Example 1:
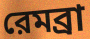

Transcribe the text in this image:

রেমব্রা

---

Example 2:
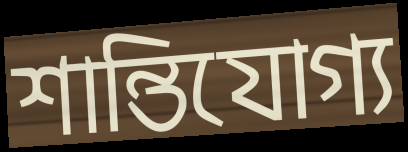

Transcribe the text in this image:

শান্তিযোগ্য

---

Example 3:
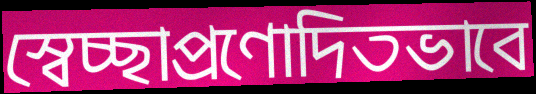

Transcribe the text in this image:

স্বেচ্ছাপ্রণোদিতভাবে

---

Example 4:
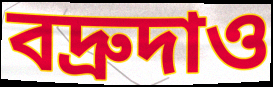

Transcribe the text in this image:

বদ্রুদাও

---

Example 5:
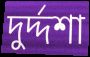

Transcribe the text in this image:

দুর্দ্দশা